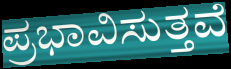
ಪ್ರಭಾವಿಸುತ್ತವೆ